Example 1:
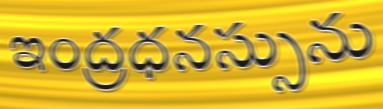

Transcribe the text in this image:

ఇంద్రధనస్సును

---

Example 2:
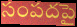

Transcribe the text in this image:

సంపదపై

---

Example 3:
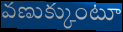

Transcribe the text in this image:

వణుక్కుంటూ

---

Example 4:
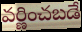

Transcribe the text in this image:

వర్ణించబడే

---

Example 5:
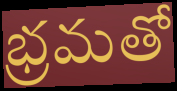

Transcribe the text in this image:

భ్రమతో